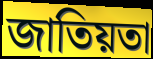
জাতিয়তা